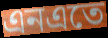
এনএতে